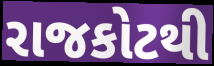
રાજકોટથી